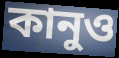
কানুও